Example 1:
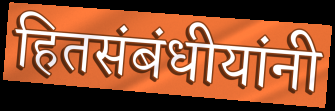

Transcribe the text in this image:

हितसंबंधीयांनी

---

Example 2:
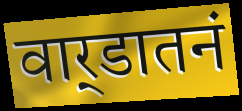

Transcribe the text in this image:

वार्डातनं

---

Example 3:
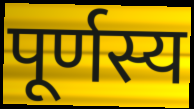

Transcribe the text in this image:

पूर्णस्य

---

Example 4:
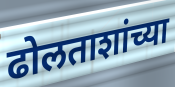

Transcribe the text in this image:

ढोलताशांच्या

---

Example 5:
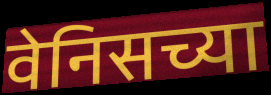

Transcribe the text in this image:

वेनिसच्या